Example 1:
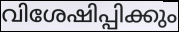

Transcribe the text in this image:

വിശേഷിപ്പിക്കും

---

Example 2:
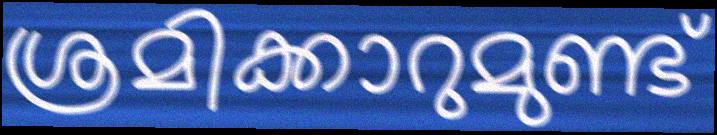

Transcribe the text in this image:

ശ്രമിക്കാറുമുണ്ട്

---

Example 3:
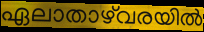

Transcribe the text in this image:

ഏലാതാഴ്‌വരയിൽ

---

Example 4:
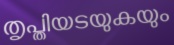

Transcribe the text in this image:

തൃപ്തിയടയുകയും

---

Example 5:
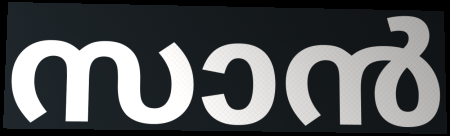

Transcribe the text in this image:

സാൻ